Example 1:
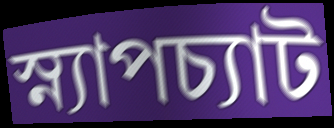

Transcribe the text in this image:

স্ন্যাপচ্যাট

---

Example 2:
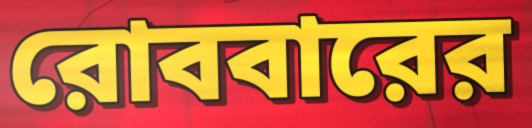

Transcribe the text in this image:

রোববারের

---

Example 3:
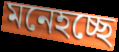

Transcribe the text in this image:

মনেহচ্ছে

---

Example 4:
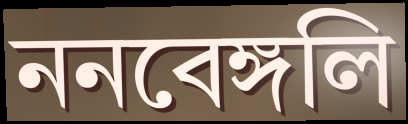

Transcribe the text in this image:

ননবেঙ্গলি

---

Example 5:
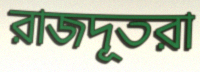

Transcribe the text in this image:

রাজদূতরা